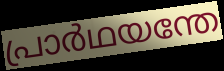
പ്രാർഥയന്തേ